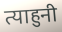
त्याहुनी